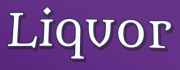
Liquor